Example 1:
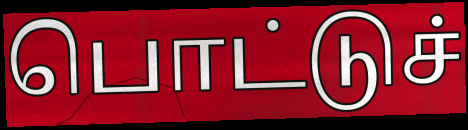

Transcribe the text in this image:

பொட்டுச்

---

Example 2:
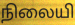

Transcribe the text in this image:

நிலையி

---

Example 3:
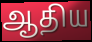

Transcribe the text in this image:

ஆதிய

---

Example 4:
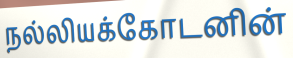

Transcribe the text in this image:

நல்லியக்கோடனின்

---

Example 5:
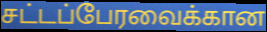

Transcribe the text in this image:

சட்டப்பேரவைக்கான